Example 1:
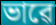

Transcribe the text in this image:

ভাৱে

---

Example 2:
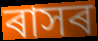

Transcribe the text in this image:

ৰাসৰ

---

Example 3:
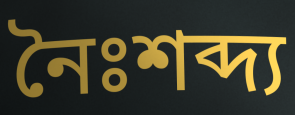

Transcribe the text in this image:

নৈঃশব্দ্য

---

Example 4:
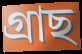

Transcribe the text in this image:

গ্ৰাছ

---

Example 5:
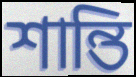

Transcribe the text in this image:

শান্তি